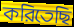
করিতেছি